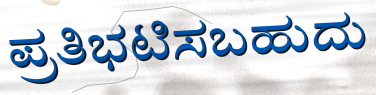
ಪ್ರತಿಭಟಿಸಬಹುದು